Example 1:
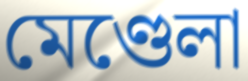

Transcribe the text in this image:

মেণ্ডেলা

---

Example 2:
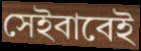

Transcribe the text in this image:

সেইবাবেই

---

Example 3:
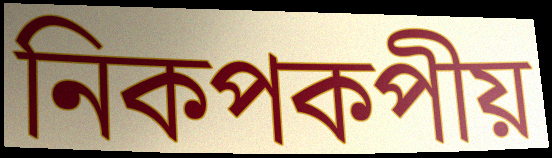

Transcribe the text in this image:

নিকপকপীয়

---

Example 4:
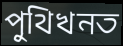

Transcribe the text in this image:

পুথিখনত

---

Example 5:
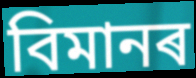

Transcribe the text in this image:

বিমানৰ